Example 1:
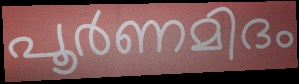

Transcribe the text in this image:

പൂർണമിദം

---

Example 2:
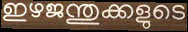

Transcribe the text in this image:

ഇഴജന്തുക്കളുടെ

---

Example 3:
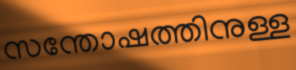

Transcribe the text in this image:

സന്തോഷത്തിനുള്ള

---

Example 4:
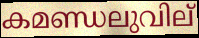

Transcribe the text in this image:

കമണ്ഡലുവില്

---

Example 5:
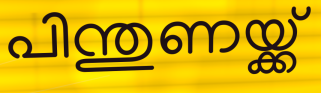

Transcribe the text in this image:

പിന്തുണയ്ക്ക്